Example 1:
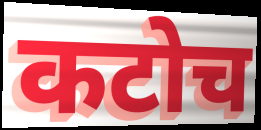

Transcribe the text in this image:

कटोच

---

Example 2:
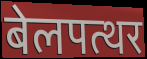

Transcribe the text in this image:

बेलपत्थर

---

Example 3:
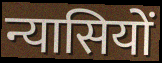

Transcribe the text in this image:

न्यासियों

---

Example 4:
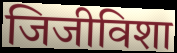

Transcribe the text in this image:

जिजीविशा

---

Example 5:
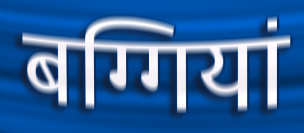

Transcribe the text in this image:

बग्गियां